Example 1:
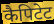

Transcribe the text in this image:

कैपिटेट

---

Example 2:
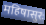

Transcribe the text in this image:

महिषासुरः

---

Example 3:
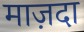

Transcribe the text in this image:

माज़दा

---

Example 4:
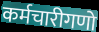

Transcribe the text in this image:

कर्मचारीगणो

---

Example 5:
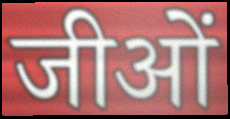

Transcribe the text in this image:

जीओं